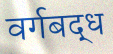
वर्गबद्ध